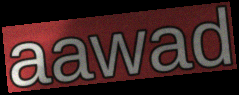
aawad